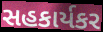
સહકાર્યકર